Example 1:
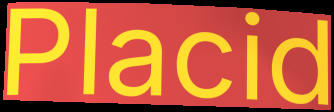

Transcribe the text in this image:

Placid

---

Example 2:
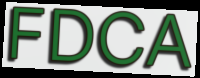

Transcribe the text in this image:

FDCA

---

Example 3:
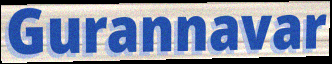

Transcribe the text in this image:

Gurannavar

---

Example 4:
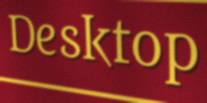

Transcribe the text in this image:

Desktop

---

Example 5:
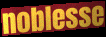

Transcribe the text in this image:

noblesse